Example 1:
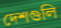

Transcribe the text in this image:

দেশগুলি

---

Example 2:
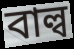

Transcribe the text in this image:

বাল্ব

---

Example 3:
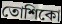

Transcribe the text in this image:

তোশিকো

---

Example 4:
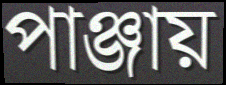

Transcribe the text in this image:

পাঞ্জায়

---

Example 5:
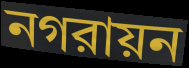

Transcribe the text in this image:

নগরায়ন